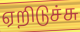
ஏறிடுச்சு